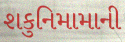
શકુનિમામાની